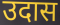
उदास